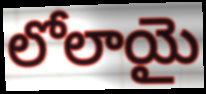
లోలాయై